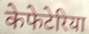
केफेटेरिया